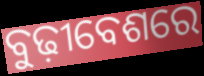
ବୁଢ଼ୀବେଶରେ